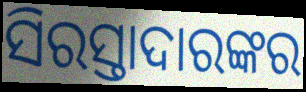
ସିରସ୍ତାଦାରଙ୍କର